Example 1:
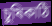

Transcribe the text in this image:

চুষিকাঠি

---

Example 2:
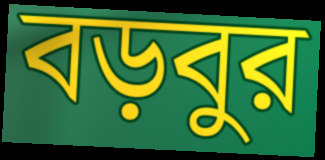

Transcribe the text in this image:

বড়বুর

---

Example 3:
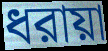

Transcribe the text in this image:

ধরায়া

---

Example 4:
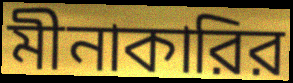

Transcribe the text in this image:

মীনাকারির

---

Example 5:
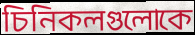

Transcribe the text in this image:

চিনিকলগুলোকে